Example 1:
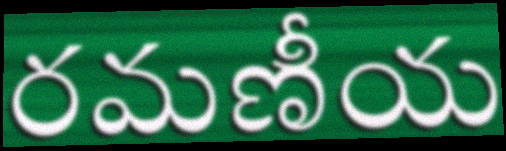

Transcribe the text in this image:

రమణీయ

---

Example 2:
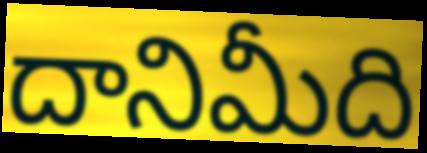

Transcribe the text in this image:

దానిమీది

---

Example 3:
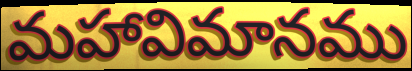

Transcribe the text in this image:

మహావిమానము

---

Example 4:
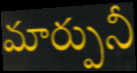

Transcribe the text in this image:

మార్పునీ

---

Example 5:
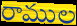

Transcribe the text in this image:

రాముల